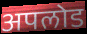
अपलोड